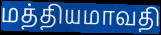
மத்தியமாவதி